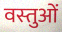
वस्‍तुओं